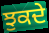
ਝੁਕਦੇ